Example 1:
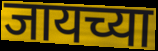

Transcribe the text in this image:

जायच्या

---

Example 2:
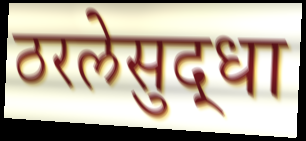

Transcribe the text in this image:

ठरलेसुद्धा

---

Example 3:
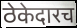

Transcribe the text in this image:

ठेकेदारच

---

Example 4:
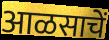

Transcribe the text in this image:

आळसाचें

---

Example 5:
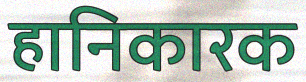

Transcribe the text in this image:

हानिकारक